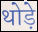
थोड़े